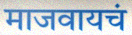
माजवायचं